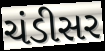
ચંડીસર